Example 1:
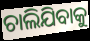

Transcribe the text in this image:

ଚାଲିଯିବାକୁ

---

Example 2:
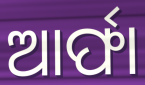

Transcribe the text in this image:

ଆର୍ଫା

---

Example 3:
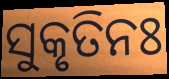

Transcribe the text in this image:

ସୁକୃତିନଃ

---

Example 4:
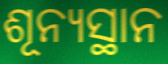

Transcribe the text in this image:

ଶୂନ୍ୟସ୍ଥାନ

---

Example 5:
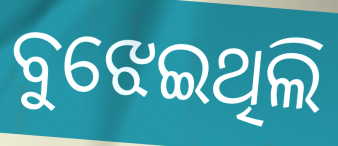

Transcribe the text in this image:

ବୁଝେଇଥିଲି